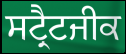
ਸਟ੍ਰੈਟਜੀਕ